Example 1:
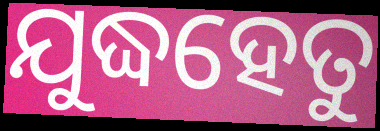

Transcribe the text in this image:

ଯୁଦ୍ଧହେତୁ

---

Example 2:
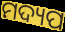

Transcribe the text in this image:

ମଦ୍ୟପ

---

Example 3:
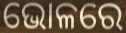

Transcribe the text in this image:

ଭୋଳରେ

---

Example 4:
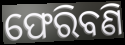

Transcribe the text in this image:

ଫେରିବଣି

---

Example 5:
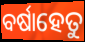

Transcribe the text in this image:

ବର୍ଷାହେତୁ